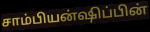
சாம்பியன்ஷிப்பின்